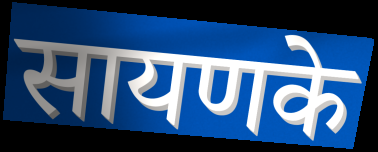
सायणके